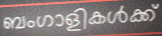
ബംഗാളികൾക്ക്